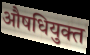
औषधियुक्त